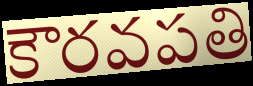
కౌరవపతి